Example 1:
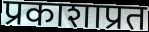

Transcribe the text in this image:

प्रकाशाप्रत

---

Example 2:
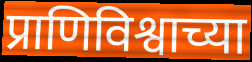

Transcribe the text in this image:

प्राणिविश्वाच्या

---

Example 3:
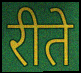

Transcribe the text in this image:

रीते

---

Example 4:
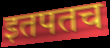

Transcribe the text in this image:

इतपतच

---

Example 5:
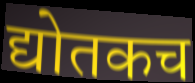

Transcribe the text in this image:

द्योतकच